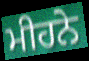
ਮੀਹਨੇ